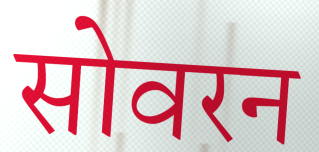
सोवरन